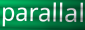
parallal